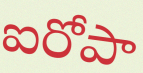
ఐరోపా